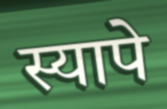
स्यापे